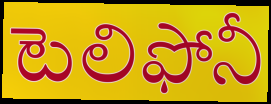
టెలిఫోనీ